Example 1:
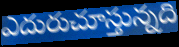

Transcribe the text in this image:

ఎదురుచూస్తున్నది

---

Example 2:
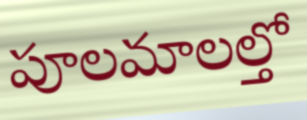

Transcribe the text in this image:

పూలమాలల్తో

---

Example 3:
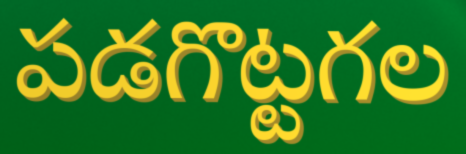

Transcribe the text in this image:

పడగొట్టగల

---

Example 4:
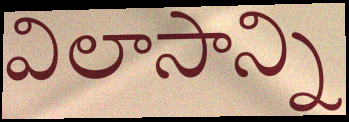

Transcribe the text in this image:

విలాసాన్ని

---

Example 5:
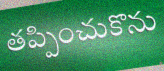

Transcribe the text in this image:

తప్పించుకొను